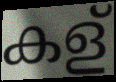
കള്